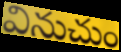
వినుచుం